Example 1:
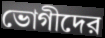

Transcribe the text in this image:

ভোগীদের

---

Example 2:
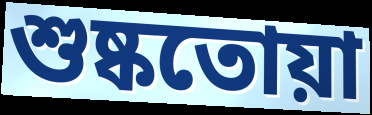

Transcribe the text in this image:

শুষ্কতোয়া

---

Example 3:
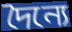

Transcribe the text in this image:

দৈন্যে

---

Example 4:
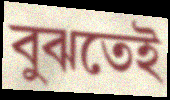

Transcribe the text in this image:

বুঝতেই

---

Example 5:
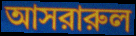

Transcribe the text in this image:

আসরারুল